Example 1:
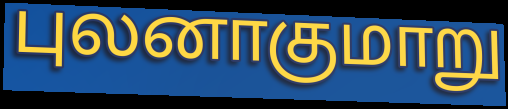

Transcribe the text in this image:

புலனாகுமாறு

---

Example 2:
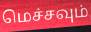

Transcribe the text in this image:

மெச்சவும்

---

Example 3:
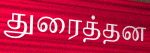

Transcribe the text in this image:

துரைத்தன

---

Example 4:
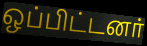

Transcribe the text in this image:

ஒப்பிட்டனர்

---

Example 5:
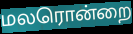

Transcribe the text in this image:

மலரொன்றை